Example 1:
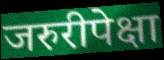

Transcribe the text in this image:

जरुरीपेक्षा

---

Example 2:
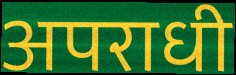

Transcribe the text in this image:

अपराधी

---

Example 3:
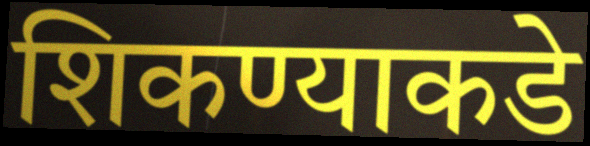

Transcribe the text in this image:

शिकण्याकडे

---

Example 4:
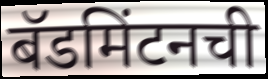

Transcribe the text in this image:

बॅडमिंटनची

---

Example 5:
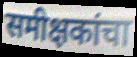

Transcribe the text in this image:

समीक्षकांचा